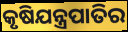
କୃଷିଯନ୍ତ୍ରପାତିର